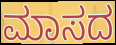
ಮಾಸದ